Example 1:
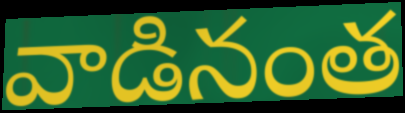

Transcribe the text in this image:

వాడినంత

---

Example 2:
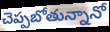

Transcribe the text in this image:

చెప్పబోతున్నానో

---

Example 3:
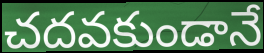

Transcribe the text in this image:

చదవకుండానే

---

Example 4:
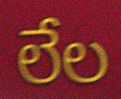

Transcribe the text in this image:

లేల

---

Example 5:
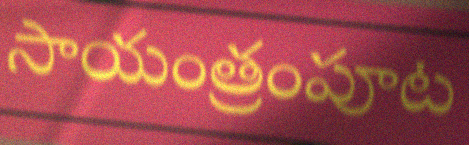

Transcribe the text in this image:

సాయంత్రంపూట